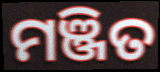
ମଞ୍ଜିତ